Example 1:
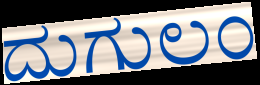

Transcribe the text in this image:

ದುಗುಲಂ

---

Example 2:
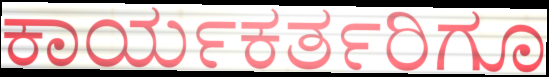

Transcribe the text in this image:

ಕಾರ್ಯಕರ್ತರಿಗೂ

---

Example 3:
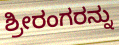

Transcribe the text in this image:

ಶ್ರೀರಂಗರನ್ನು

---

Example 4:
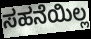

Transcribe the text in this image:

ಸಹನೆಯಿಲ್ಲ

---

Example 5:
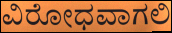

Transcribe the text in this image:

ವಿರೋಧವಾಗಲಿ